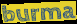
burma